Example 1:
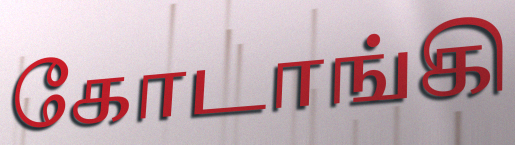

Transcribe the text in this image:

கோடாங்கி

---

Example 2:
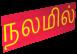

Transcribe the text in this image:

நலமில்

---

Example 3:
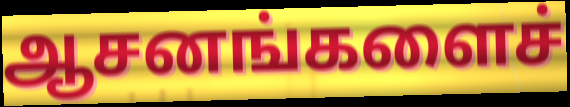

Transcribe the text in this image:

ஆசனங்களைச்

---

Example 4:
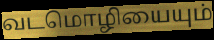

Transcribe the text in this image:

வடமொழியையும்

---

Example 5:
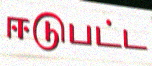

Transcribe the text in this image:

ஈடுபட்ட